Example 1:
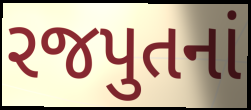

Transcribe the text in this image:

રજપુતનાં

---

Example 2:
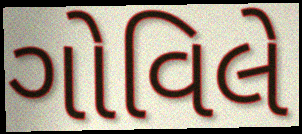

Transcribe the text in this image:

ગોવિલે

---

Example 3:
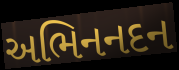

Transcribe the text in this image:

અભિનનદન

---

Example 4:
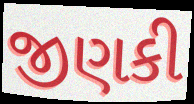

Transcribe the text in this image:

જીણકી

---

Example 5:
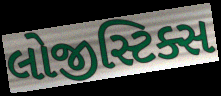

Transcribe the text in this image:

લોજીસ્ટિક્સ